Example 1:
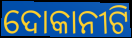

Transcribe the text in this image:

ଦୋକାନୀଟି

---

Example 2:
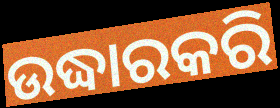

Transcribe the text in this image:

ଉଦ୍ଧାରକରି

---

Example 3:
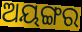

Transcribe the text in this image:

ଅୟଙ୍ଗର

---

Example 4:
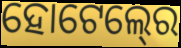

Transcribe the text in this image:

ହୋଟେଲ୍‍ରେ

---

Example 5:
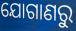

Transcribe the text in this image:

ଯୋଗାଣରୁ